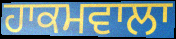
ਹਾਕਮਵਾਲਾ